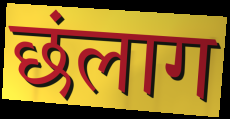
छंलाग